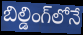
బిల్డింగ్‌లోనే